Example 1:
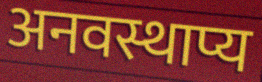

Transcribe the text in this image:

अनवस्थाप्य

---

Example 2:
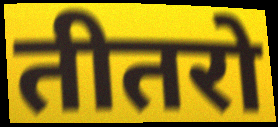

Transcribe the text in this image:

तीतरो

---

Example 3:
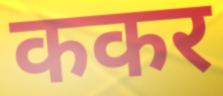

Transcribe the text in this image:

ककर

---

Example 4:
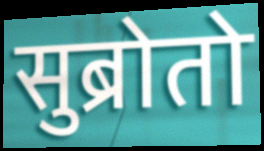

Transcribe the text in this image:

सुब्रोतो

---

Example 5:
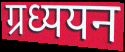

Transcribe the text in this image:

ग्रध्ययन